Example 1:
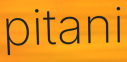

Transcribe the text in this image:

pitani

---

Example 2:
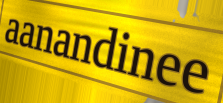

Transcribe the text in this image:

aanandinee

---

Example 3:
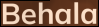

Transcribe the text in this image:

Behala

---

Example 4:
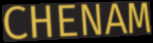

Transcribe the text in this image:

CHENAM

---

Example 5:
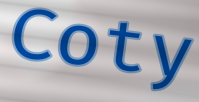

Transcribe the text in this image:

Coty